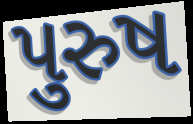
પુરુષ